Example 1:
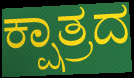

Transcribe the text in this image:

ಕ್ಷಾತ್ರದ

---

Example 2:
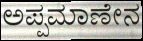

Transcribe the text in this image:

ಅಪ್ಪಮಾಣೇನ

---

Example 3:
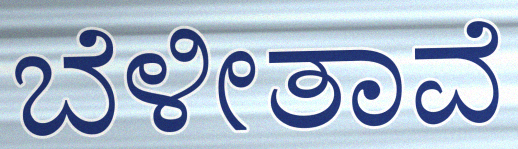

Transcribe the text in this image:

ಬೆಳೀತಾವೆ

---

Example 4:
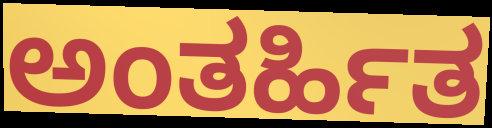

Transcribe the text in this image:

ಅಂತರ್ಹಿತ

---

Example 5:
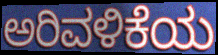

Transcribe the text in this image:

ಅರಿವಳಿಕೆಯ